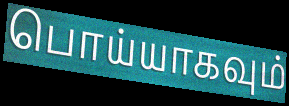
பொய்யாகவும்